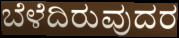
ಬೆಳೆದಿರುವುದರ